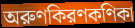
অরুণকিরণকণিকা